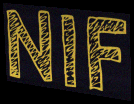
NIF